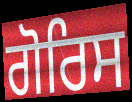
ਗੋਰਿਸ